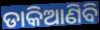
ଡାକିଆଣିବି